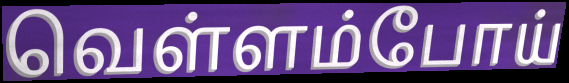
வெள்ளம்போய்